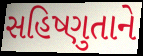
સહિષ્ણુતાને